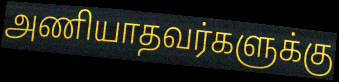
அணியாதவர்களுக்கு